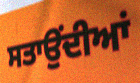
ਸਤਾਉਂਦੀਆਂ